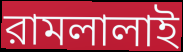
রামলালাই